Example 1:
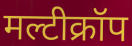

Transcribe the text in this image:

मल्टीक्रॉप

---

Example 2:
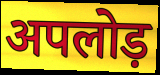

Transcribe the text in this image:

अपलोड़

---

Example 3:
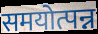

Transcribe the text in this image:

समयोत्पन्न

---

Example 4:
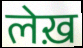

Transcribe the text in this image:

लेख़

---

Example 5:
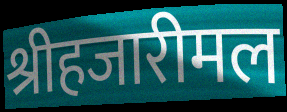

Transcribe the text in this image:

श्रीहजारीमल